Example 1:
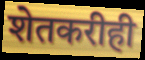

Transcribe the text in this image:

शेतकरीही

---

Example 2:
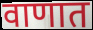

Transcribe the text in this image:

वाणात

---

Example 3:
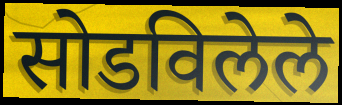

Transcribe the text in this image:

सोडविलेले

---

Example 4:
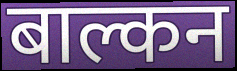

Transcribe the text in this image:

बाल्कन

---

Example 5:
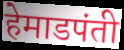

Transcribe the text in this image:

हेमाडपंती